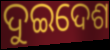
ଦୁଇଦେଶ